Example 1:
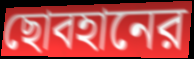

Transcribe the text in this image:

ছোবহানের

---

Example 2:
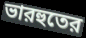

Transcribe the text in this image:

ভারহুতের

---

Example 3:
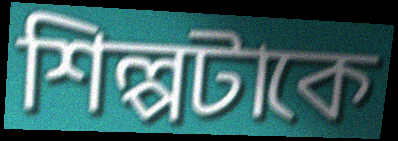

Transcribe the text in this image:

শিল্পটাকে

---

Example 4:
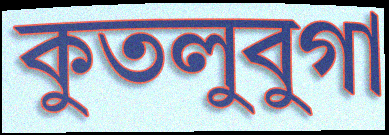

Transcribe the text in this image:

কুতলুবুগা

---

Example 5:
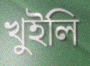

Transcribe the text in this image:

খুইলি